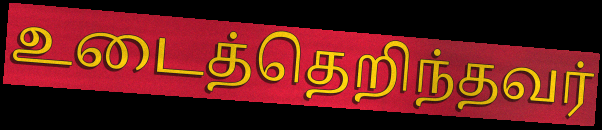
உடைத்தெறிந்தவர்